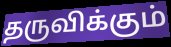
தருவிக்கும்